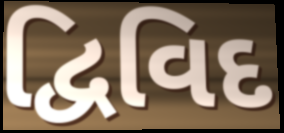
દ્વિવિદ